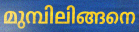
മുമ്പിലിങ്ങനെ